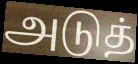
அடுத்